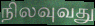
நிலவுவது